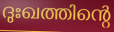
ദുഃഖത്തിന്റെ